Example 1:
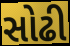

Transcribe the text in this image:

સોઢી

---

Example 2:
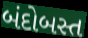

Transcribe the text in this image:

બંદોબસ્ત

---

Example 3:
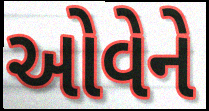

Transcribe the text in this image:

ઓવેને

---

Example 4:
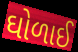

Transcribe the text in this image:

ઘોળાઈ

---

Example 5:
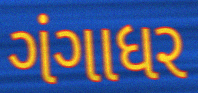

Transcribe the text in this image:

ગંગાધર